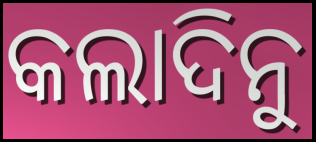
କଲାଦିନୁ